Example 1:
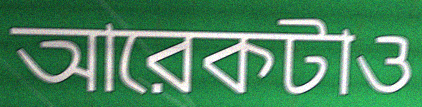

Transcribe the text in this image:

আরেকটাও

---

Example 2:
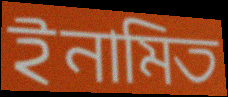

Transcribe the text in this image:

ইনামিত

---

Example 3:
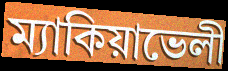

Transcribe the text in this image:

ম্যাকিয়াভেলী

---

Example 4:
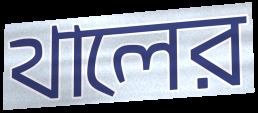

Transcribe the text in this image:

থালের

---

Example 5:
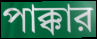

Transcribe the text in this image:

পাক্কার